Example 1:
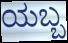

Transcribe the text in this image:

ಯಬ್ಬ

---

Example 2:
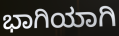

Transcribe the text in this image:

ಭಾಗಿಯಾಗಿ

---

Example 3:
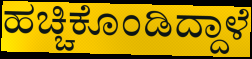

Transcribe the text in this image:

ಹಚ್ಚಿಕೊಂಡಿದ್ದಾಳೆ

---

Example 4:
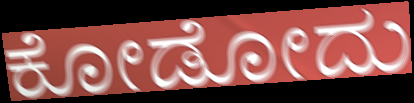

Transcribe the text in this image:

ಕೋಡೋದು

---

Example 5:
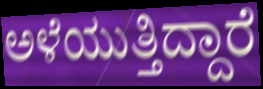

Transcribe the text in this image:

ಅಳೆಯುತ್ತಿದ್ದಾರೆ